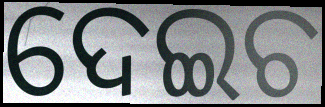
ଦେଇଚ